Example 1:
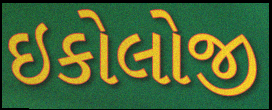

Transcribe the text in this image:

ઇકોલોજી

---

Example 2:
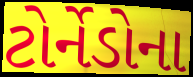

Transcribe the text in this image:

ટોર્નેડોના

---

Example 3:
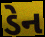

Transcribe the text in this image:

ડેન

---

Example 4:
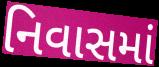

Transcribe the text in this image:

નિવાસમાં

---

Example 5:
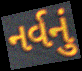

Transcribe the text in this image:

નર્વનું